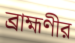
ব্রাহ্মণীর